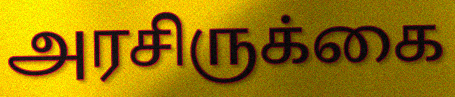
அரசிருக்கை